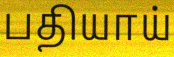
பதியாய்